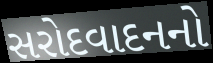
સરોદવાદનનો